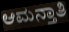
ಆಮನ್ತಾತಿ